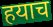
हयाच